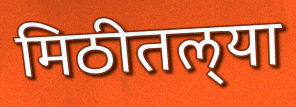
मिठीतल्या